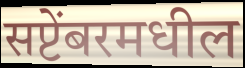
सप्टेंबरमधील